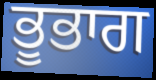
ਭੂਭਾਗ